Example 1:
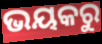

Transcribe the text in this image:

ଭୟକରୁ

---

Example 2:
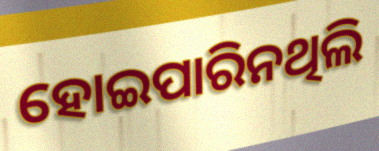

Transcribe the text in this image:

ହୋଇପାରିନଥିଲି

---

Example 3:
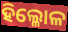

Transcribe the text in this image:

ହିଲ୍ଳୋଳ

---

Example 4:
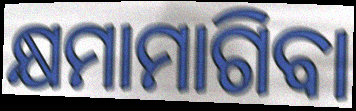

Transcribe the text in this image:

କ୍ଷମାମାଗିବା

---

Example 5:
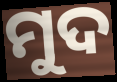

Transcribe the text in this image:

ମୁଦ